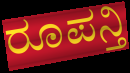
ರೂಪನ್ತಿ